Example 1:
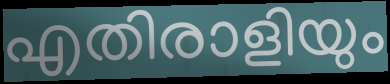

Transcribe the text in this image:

എതിരാളിയും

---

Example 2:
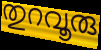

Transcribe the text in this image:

തുറവൂരു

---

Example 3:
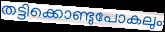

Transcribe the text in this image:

തട്ടിക്കൊണ്ടുപോകലും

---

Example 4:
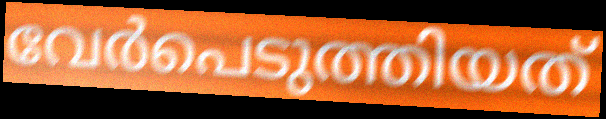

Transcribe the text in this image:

വേർപെടുത്തിയത്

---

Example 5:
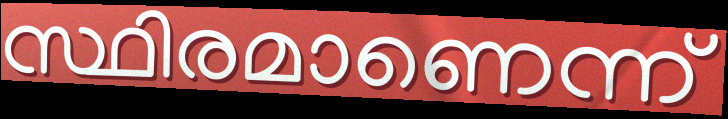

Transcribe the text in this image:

സ്ഥിരമാണെന്ന്